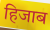
हिजाब